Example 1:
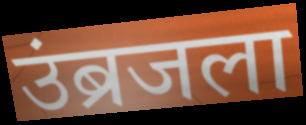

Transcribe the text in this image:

उंब्रजला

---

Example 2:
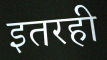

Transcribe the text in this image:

इतरही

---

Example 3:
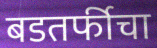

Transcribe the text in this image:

बडतर्फीचा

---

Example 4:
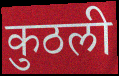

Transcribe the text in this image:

कुठली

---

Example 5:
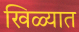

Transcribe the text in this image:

खिळ्यात